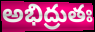
అభిద్రుతః